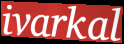
ivarkal